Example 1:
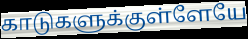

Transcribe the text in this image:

காடுகளுக்குள்ளேயே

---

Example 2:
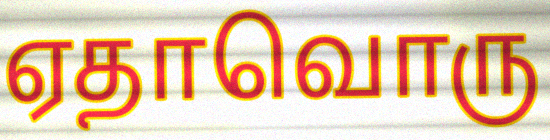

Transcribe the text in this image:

ஏதாவொரு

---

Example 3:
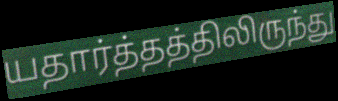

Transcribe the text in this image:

யதார்த்தத்திலிருந்து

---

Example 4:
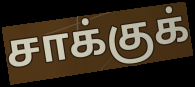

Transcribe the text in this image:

சாக்குக்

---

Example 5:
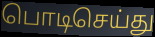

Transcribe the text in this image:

பொடிசெய்து